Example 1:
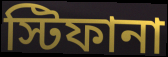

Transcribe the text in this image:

স্টিফানা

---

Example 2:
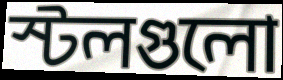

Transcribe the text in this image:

স্টলগুলো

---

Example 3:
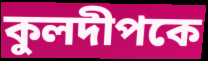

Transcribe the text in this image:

কুলদীপকে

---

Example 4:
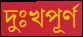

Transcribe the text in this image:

দুঃখপূর্ণ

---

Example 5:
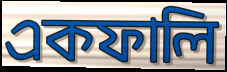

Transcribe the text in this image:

একফালি